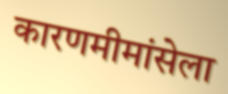
कारणमीमांसेला